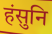
हंसुनि